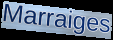
Marraiges